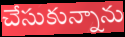
చేసుకున్నాను